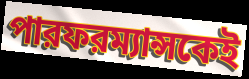
পারফরম্যান্সকেই